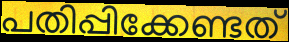
പതിപ്പിക്കേണ്ടത്